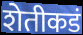
शेतीकडं